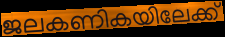
ജലകണികയിലേക്ക്